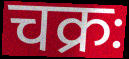
चक्रः